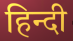
हिन्दी